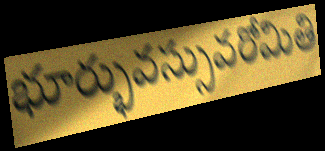
భూర్భువస్సువరోమితి